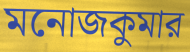
মনোজকুমার